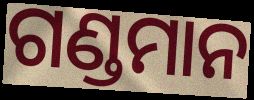
ଗଣ୍ଡମାନ